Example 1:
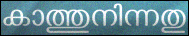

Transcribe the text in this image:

കാത്തുനിന്നതു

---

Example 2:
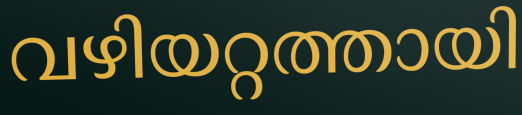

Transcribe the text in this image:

വഴിയറ്റത്തായി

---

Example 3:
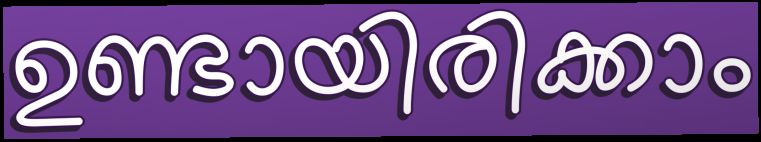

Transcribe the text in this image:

ഉണ്ടായിരിക്കാം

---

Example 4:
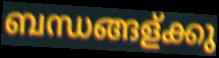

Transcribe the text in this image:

ബന്ധങ്ങള്ക്കു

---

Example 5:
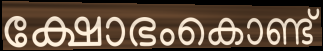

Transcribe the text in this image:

ക്ഷോഭംകൊണ്ട്